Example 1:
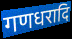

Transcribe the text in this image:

गणधरादि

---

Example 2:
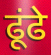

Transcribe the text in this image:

ढूंढे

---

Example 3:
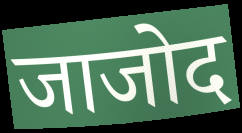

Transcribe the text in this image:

जाजोद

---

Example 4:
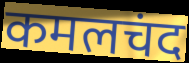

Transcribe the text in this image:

कमलचंद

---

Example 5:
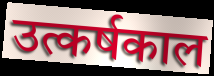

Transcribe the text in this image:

उत्कर्षकाल